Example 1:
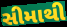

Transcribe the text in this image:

સીમાથી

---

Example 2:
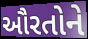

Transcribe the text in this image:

ઔરતોને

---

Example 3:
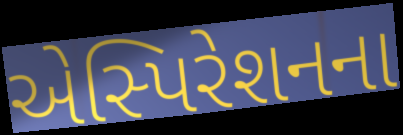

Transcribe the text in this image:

એસ્પિરેશનના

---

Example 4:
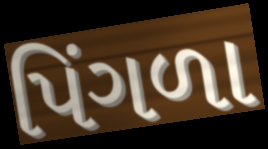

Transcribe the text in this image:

પિંગળા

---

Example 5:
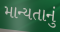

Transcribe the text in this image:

માન્યતાનું